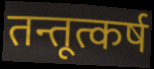
तन्तूत्कर्ष